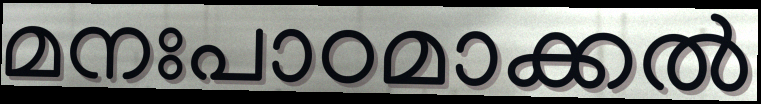
മനഃപാഠമാക്കൽ